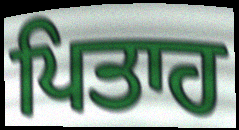
ਪਿਤਾਹ